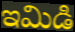
ఇమిడి